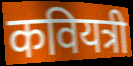
कवियत्री